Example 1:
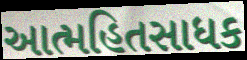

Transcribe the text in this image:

આત્મહિતસાધક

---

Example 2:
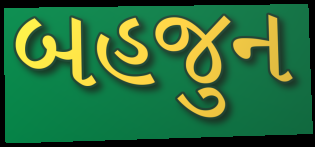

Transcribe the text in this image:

બહજુન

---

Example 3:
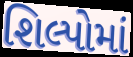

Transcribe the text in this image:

શિલ્પોમાં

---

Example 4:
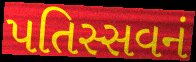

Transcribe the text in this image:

પતિસ્સવનં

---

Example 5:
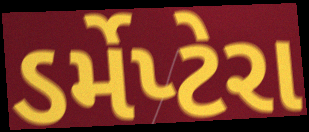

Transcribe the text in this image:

ડર્મેપ્ટેરા